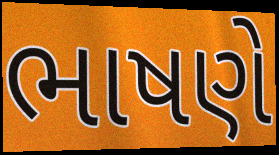
ભાષણે